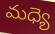
మధ్యె